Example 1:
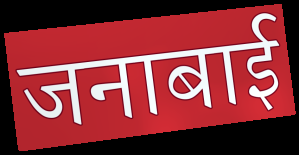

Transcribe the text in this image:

जनाबाई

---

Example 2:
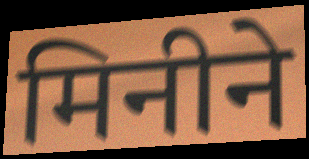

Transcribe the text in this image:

मिनीने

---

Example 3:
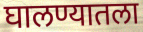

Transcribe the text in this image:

घालण्यातला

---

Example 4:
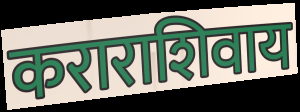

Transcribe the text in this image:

कराराशिवाय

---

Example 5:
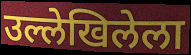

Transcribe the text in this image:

उल्लेखिलेला